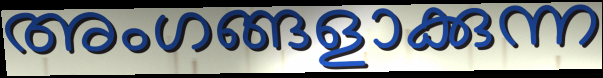
അംഗങ്ങളാക്കുന്ന